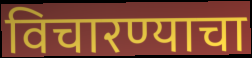
विचारण्याचा